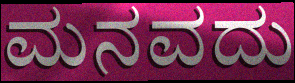
ಮನವದು